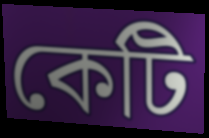
কেটি